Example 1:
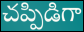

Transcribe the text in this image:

చప్పిడిగా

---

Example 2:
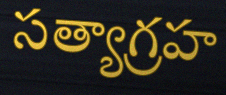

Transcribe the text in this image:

సత్యాగ్రహ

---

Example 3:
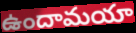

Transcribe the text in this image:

ఉందామయా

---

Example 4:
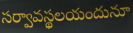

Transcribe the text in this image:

సర్వావస్థలయందునూ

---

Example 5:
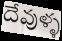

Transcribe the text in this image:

దేవుళ్ళ